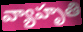
వ్యాహృతి